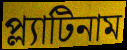
প্ল্যাটিনাম